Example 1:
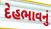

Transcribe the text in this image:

દેહભાવનું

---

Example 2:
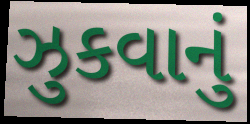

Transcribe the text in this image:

ઝુકવાનું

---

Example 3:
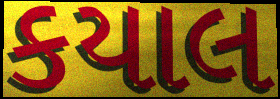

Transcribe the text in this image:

કયાલ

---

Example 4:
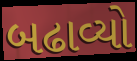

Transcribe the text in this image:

બઢાવ્યો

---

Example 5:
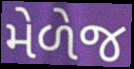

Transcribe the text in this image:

મેળેજ